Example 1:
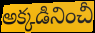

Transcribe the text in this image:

అక్కడినించీ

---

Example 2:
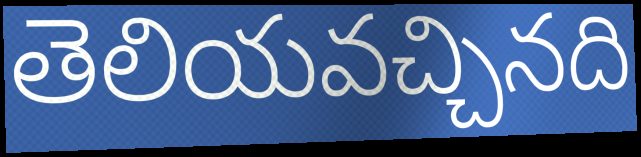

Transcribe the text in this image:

తెలియవచ్చినది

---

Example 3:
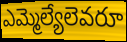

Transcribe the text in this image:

ఎమ్మెల్యేలెవరూ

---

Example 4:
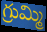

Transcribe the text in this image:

గ్రుమ్మి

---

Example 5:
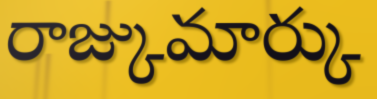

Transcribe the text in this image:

రాజ్కుమార్కు